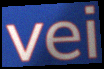
vei